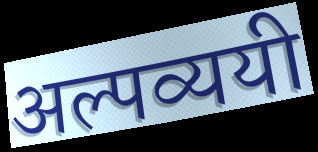
अल्पव्ययी